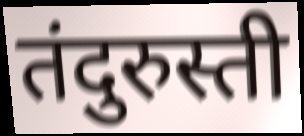
तंदुरुस्ती